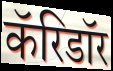
कॅरिडॉर